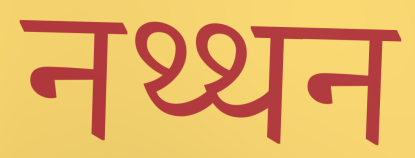
नथ्थन